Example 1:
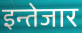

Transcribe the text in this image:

इन्तेजार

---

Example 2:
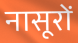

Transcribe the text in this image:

नासूरों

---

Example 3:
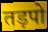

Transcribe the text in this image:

तड़पो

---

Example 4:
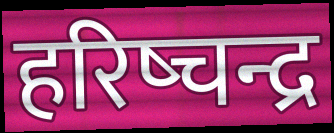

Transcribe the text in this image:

हरिष्चन्द्र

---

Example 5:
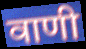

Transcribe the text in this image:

वाणी